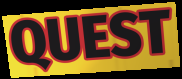
QUEST